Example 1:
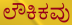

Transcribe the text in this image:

ಲೌಕಿಕವು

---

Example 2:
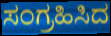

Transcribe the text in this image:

ಸಂಗ್ರಹಿಸಿದ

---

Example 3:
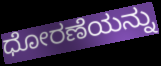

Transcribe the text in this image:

ಧೋರಣೆಯನ್ನು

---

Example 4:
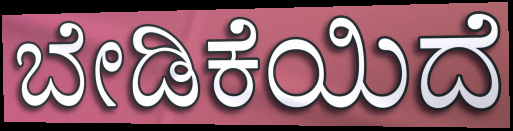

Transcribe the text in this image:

ಬೇಡಿಕೆಯಿದೆ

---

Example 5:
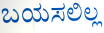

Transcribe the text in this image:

ಬಯಸಲಿಲ್ಲ